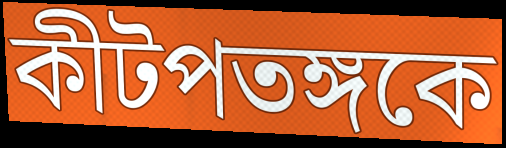
কীটপতঙ্গকে